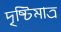
দৃষ্টিমাত্র